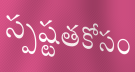
స్పష్టతకోసం